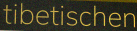
tibetischen